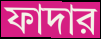
ফাদার